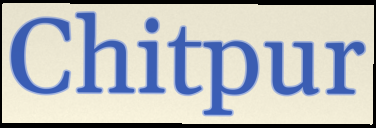
Chitpur